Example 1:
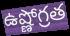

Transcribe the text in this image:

ఉష్ణోగ్రత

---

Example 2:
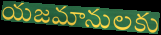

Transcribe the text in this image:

యజమానులకు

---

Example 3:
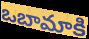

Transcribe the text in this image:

ఒబామాకి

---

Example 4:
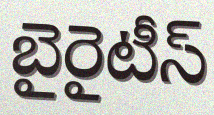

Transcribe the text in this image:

బైరైటీస్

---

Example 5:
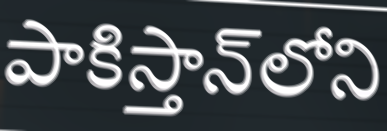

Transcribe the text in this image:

పాకిస్తాన్‌లోని